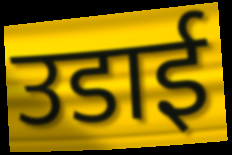
उडाई